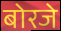
बोरजे